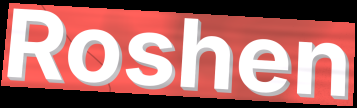
Roshen